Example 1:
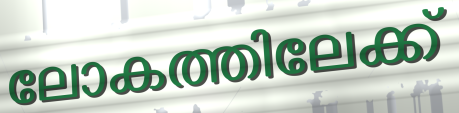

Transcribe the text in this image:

ലോകത്തിലേക്ക്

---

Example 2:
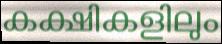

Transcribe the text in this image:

കക്ഷികളിലും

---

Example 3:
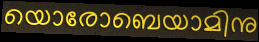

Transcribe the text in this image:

യൊരോബെയാമിനു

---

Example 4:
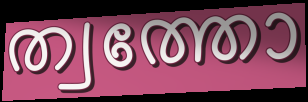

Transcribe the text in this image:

ത്വത്തോ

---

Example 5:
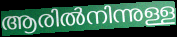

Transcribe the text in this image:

ആരിൽനിന്നുള്ള